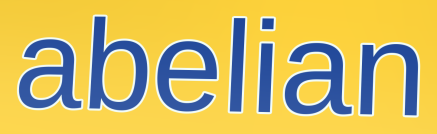
abelian